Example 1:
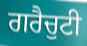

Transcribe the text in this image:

ਗਰੈਚੁਟੀ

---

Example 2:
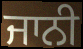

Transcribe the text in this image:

ਜਾਨੀ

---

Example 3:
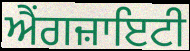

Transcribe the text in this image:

ਐਂਗਜ਼ਾਇਟੀ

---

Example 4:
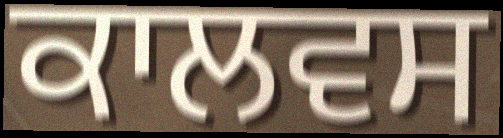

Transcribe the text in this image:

ਕਾਲਵਸ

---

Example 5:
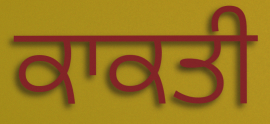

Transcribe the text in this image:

ਕਾਕਤੀ